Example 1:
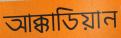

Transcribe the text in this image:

আক্কাডিয়ান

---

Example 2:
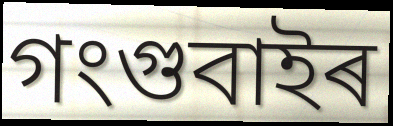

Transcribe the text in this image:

গংগুবাইৰ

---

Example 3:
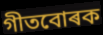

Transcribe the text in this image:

গীতবোৰক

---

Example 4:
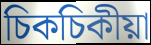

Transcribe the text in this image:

চিকচিকীয়া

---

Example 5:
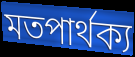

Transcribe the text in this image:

মতপাৰ্থক্য